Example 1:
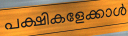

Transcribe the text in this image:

പക്ഷികളേക്കാൾ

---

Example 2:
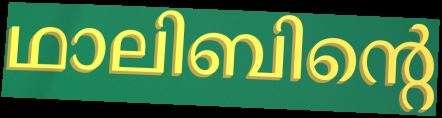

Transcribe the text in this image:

ഥാലിബിന്റെ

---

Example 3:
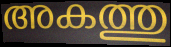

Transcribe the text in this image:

അകത്തു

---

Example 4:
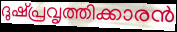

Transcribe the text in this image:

ദുഷ്പ്രവൃത്തിക്കാരൻ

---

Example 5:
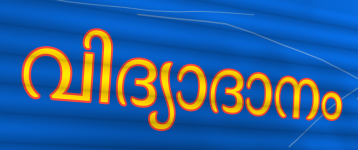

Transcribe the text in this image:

വിദ്യാദാനം